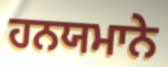
ਹਨਯਮਾਨੇ